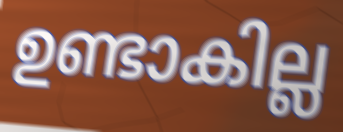
ഉണ്ടാകില്ല